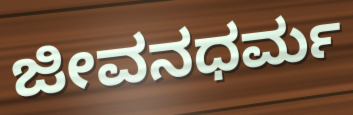
ಜೀವನಧರ್ಮ